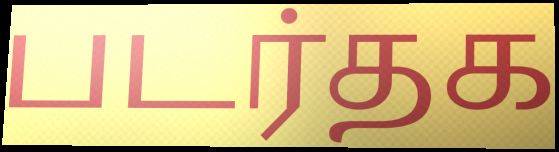
படர்தக